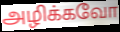
அழிக்கவோ